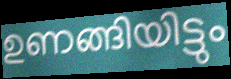
ഉണങ്ങിയിട്ടും